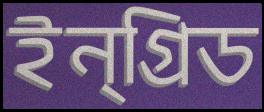
ইন্‌গ্রিড